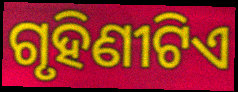
ଗୃହିଣୀଟିଏ